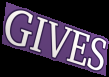
GIVES